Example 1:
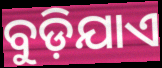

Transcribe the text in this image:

ବୁଡ଼ିଯାଏ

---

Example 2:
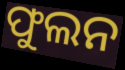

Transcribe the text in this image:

ଫୁଲନ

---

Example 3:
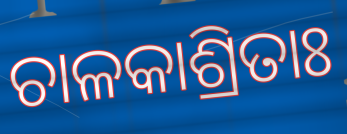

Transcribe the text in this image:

ଚାଳକାଶ୍ରିତାଃ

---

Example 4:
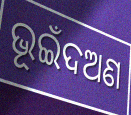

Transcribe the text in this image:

ଭୂଇଁଦଅଣ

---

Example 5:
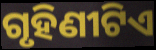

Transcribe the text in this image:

ଗୃହିଣୀଟିଏ